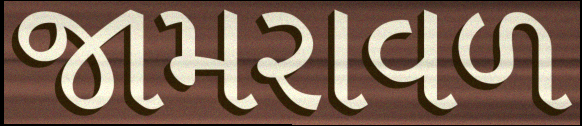
જામરાવળ